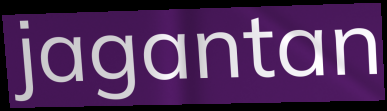
jagantan